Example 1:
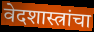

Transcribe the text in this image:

वेदशास्त्रांचा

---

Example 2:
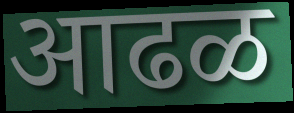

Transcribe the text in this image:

आढळ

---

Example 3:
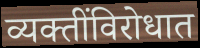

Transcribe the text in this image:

व्यक्तींविरोधात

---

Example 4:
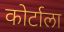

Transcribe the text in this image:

कोर्टाला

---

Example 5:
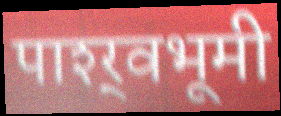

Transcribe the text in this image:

पाश्र्वभूमी